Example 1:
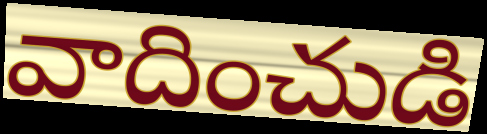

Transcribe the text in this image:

వాదించుడి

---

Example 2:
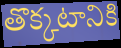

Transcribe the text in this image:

తొక్కటానికి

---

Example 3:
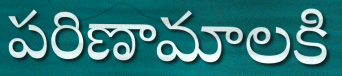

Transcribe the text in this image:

పరిణామాలకి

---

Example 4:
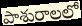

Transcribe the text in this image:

పాశురాలలో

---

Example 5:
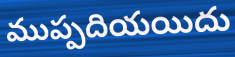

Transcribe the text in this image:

ముప్పదియయిదు